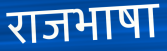
राजभाषा